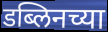
डब्लिनच्या